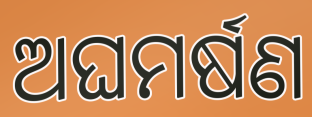
ଅଘମର୍ଷଣ